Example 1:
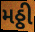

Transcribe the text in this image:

મઠ્ઠી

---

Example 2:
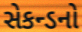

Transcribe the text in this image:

સેકન્ડનો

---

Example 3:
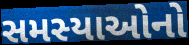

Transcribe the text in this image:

સમસ્યાઓનો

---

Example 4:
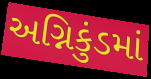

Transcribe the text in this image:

અગ્નિકુંડમાં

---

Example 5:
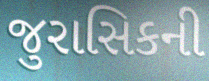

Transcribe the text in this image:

જુરાસિકની